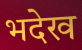
भदेख